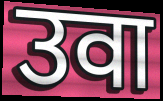
उवा